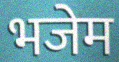
भजेम